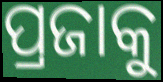
ପ୍ରଜାକୁ